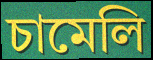
চামেলি